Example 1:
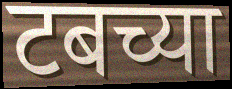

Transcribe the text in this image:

टबच्या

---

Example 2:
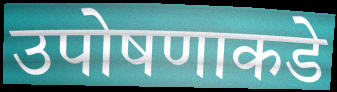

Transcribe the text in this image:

उपोषणाकडे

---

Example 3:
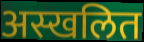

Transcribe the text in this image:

अस्खलित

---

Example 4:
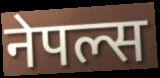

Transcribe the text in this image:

नेपल्स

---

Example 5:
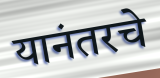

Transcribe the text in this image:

यानंतरचे